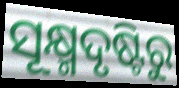
ସୂକ୍ଷ୍ମଦୃଷ୍ଟିରୁ